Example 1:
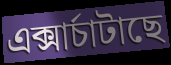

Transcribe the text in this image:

এক্সাৰ্চাটাছে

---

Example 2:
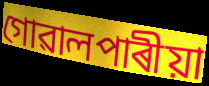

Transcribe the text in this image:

গোৱালপাৰীয়া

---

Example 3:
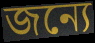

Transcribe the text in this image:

জন্যে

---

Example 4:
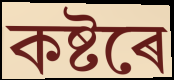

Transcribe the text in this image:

কষ্টৰে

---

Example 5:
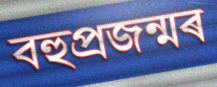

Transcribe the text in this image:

বহুপ্ৰজন্মৰ